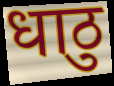
धाठु